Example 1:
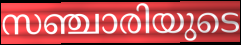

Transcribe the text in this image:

സഞ്ചാരിയുടെ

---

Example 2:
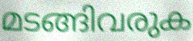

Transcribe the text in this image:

മടങ്ങിവരുക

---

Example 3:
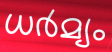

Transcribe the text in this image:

ധർമ്യം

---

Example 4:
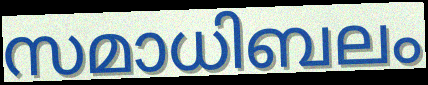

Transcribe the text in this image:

സമാധിബലം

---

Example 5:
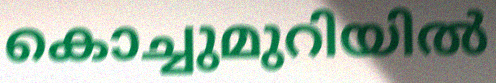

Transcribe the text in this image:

കൊച്ചുമുറിയിൽ